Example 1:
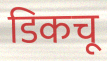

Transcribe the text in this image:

डिकचू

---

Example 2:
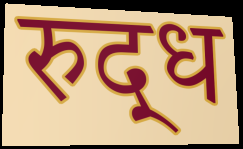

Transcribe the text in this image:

रुद्ध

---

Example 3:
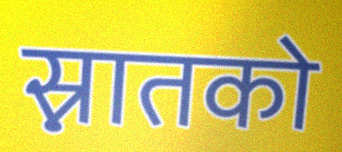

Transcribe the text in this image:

स्नातको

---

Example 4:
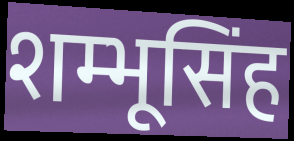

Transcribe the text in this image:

शम्भूसिंह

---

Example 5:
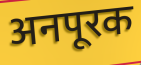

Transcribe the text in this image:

अनपूरक